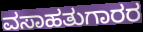
ವಸಾಹತುಗಾರರ